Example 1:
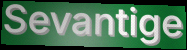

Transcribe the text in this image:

Sevantige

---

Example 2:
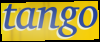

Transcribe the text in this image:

tango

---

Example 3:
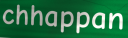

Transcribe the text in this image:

chhappan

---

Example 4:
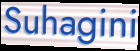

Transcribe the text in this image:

Suhagini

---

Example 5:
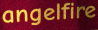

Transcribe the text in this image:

angelfire